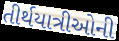
તીર્થયાત્રીઓની